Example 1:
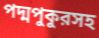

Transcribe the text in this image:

পদ্মপুকুরসহ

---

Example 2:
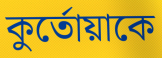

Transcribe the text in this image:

কুর্তোয়াকে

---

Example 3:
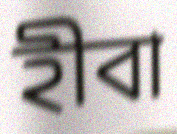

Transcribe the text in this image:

হীবা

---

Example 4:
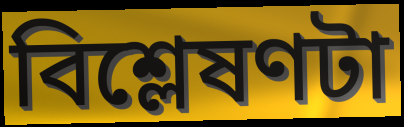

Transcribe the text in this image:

বিশ্লেষণটা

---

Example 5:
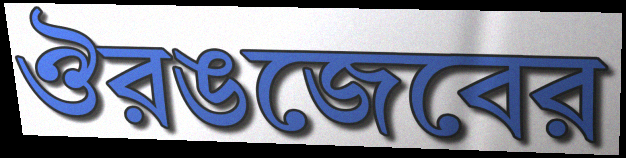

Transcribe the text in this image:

ঔরঙজেবের